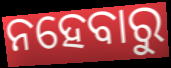
ନହେବାରୁ